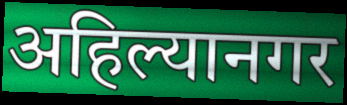
अहिल्यानगर